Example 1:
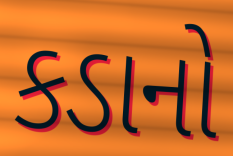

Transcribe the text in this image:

કડાનો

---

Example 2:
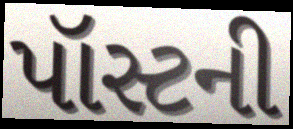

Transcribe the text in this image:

પૉસ્ટની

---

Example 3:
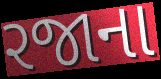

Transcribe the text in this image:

રજાના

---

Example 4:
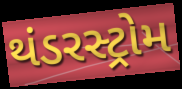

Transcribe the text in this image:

થંડરસ્ટ્રોમ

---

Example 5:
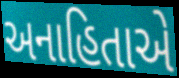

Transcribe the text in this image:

અનાહિતાએ